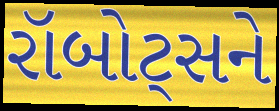
રૉબોટ્સને